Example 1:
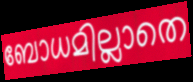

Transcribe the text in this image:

ബോധമില്ലാതെ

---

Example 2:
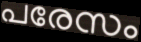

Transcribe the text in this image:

പരേസം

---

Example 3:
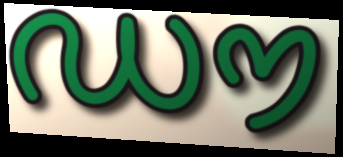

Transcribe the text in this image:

ഡൗ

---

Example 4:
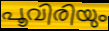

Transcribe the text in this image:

പൂവിരിയും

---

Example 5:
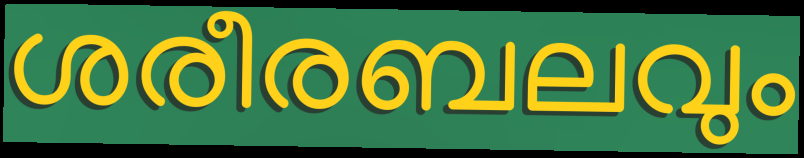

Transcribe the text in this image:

ശരീരബലവും